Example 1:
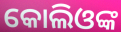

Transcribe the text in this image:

କୋଲିଓଙ୍କ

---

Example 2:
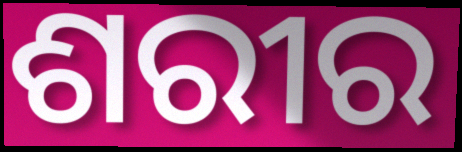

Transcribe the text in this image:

ଶରୀର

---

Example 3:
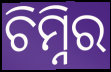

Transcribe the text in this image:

ଚିମ୍ନିର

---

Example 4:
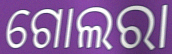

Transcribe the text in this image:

ଗୋଲରା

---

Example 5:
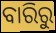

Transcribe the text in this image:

ବାରିରୁ